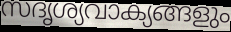
സദൃശ്യവാക്യങ്ങളും